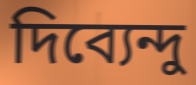
দিব্যেন্দু